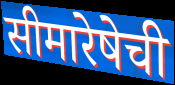
सीमारेषेची